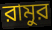
রামুর